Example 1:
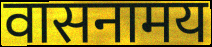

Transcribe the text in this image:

वासनामय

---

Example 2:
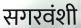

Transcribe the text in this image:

सगरवंशी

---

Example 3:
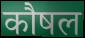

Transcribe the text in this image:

कौषल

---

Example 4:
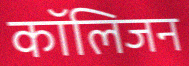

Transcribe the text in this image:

कॉलिजन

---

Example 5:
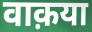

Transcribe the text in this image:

वाक़या